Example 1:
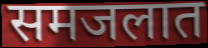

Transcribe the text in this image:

समजलात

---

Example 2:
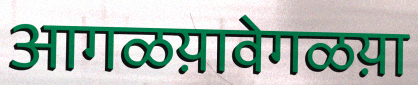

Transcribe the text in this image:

आगळय़ावेगळय़ा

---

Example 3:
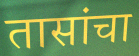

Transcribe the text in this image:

तासांचा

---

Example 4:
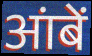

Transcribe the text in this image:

आंबें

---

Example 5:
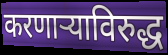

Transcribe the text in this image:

करणाऱ्याविरुद्ध